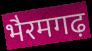
भैरमगढ़